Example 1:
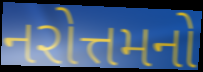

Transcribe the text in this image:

નરોત્તમનો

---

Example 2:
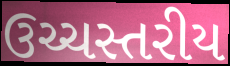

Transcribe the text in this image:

ઉચ્ચસ્તરીય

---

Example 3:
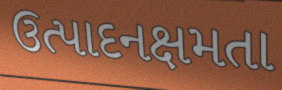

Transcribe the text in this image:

ઉત્પાદનક્ષમતા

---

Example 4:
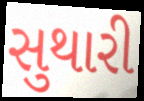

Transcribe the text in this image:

સુથારી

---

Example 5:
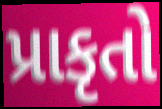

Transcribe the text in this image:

પ્રાકૃતો